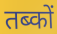
तब्कों